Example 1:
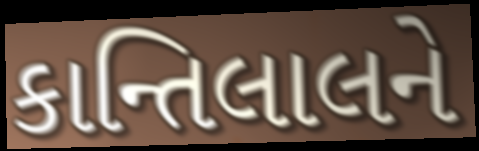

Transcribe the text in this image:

કાન્તિલાલને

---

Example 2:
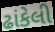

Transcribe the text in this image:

ઢાંકેલી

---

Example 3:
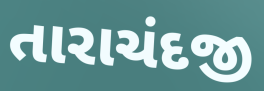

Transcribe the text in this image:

તારાચંદજી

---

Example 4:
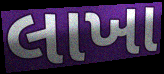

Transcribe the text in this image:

લાખા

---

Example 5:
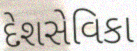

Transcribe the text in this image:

દેશસેવિકા